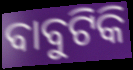
ବାବୁଟିକି